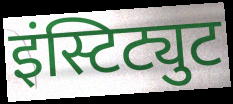
इंस्टिट्युट